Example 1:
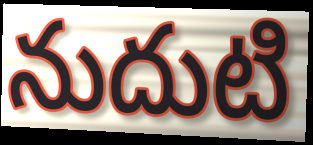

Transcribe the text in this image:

నుదుటి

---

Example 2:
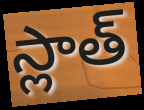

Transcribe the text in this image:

స్లాత్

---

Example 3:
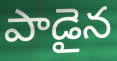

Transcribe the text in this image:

పాడైన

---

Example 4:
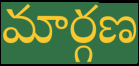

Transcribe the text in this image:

మార్గణ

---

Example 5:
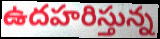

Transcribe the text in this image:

ఉదహరిస్తున్న